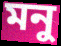
মনু